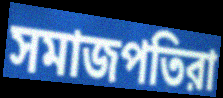
সমাজপতিরা